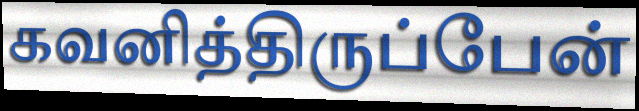
கவனித்திருப்பேன்